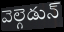
వెల్గెడున్